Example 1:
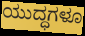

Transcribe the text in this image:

ಯುದ್ಧಗಳೂ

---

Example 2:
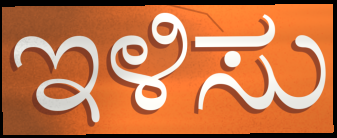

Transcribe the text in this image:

ಇಳಿಸು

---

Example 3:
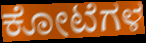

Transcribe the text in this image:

ಕೋಟೆಗಳ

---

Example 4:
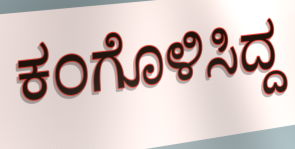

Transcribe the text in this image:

ಕಂಗೊಳಿಸಿದ್ದ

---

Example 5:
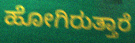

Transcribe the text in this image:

ಹೋಗಿರುತ್ತಾರೆ